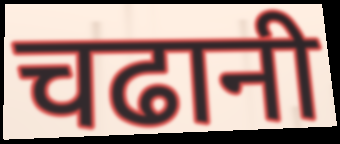
चढानी